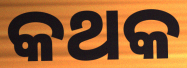
କଥକ